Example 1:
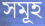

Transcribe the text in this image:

সমূহ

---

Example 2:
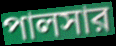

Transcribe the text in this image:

পালসার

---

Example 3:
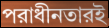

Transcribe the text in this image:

পরাধীনতারই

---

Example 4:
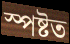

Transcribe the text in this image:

স্পষ্টত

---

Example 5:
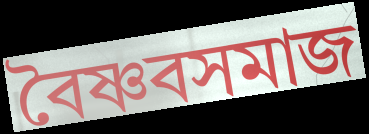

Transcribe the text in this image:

বৈষ্ণবসমাজ